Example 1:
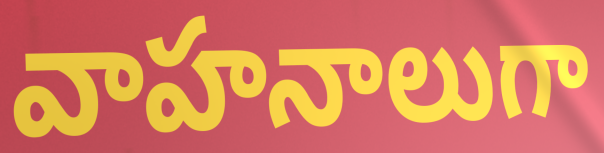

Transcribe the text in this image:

వాహనాలుగా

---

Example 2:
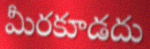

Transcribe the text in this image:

మీరకూడదు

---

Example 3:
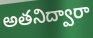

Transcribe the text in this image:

అతనిద్వారా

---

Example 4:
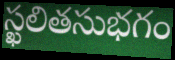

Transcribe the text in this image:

స్ఖలితసుభగం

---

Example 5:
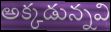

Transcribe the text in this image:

అక్కడున్నవి